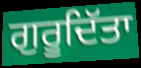
ਗੁਰੂਦਿੱਤਾ